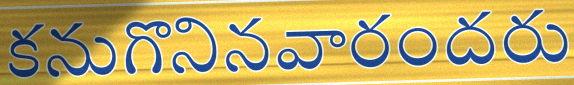
కనుగొనినవారందరు